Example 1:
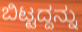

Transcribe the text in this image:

ಬಿಟ್ಟದ್ದನ್ನು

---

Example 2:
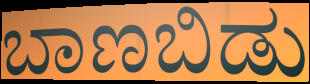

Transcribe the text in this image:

ಬಾಣಬಿಡು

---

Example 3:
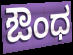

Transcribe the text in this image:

ಔಂಧ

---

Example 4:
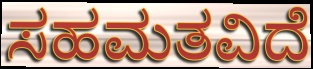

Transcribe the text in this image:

ಸಹಮತವಿದೆ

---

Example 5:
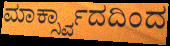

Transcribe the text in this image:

ಮಾರ್ಕ್ಸ್ವಾದದಿಂದ